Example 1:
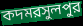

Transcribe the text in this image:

কদমরসুলপুর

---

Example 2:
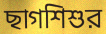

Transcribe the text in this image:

ছাগশিশুর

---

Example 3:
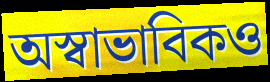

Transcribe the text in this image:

অস্বাভাবিকও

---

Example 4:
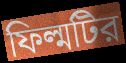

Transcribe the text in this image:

ফিল্মটির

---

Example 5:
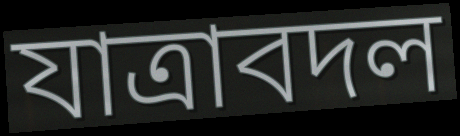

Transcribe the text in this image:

যাত্রাবদল